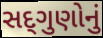
સદ્‌ગુણોનું